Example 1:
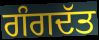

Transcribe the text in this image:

ਗੰਗਦੱਤ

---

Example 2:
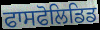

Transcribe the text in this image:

ਫਾਸਫੋਲਿਡਿਡ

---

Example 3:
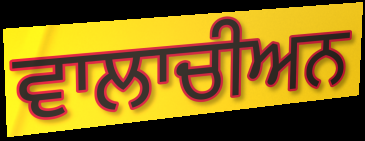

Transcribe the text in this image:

ਵਾਲਾਚੀਅਨ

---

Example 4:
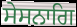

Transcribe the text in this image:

ਸੇਸਨਾਗਿ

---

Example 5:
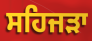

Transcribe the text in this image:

ਸਹਿਜੜਾ